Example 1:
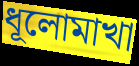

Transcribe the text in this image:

ধূলোমাখা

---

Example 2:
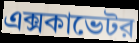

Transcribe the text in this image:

এক্সকাভেটর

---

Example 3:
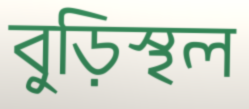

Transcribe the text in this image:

বুড়িস্থল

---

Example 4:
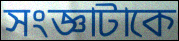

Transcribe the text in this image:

সংজ্ঞাটাকে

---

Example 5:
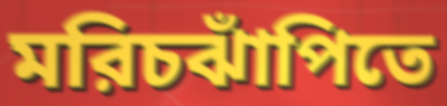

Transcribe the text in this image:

মরিচঝাঁপিতে